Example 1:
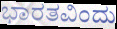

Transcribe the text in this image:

ಭಾರತವಿಂದು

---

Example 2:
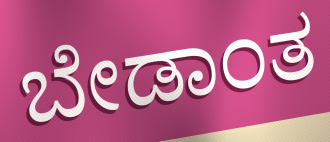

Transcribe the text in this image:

ಬೇಡಾಂತ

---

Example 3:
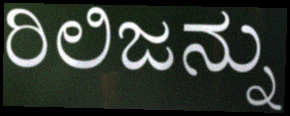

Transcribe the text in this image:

ರಿಲಿಜನ್ನು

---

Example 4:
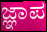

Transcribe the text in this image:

ಜ್ಞಾಪ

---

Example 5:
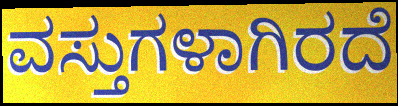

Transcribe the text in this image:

ವಸ್ತುಗಳಾಗಿರದೆ